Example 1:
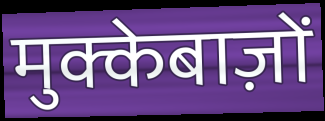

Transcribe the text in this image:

मुक्केबाज़ों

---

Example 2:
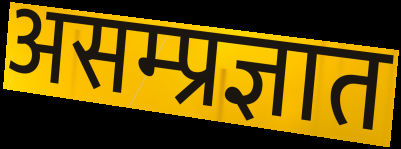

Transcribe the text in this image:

असम्प्रज्ञात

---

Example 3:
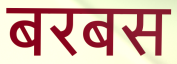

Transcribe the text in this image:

बरबस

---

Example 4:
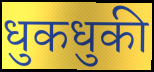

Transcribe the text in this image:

धुकधुकी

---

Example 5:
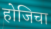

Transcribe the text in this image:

होजिचा